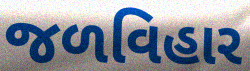
જળવિહાર